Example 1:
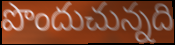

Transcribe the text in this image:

పొందుచున్నది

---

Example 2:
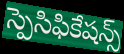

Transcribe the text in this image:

స్పెసిఫికేషన్స్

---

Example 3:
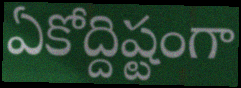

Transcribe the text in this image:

ఏకోద్దిష్టంగా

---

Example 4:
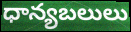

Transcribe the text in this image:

ధాన్యబలులు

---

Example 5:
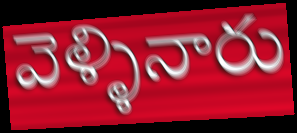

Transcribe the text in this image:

వెళ్ళినారు